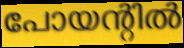
പോയന്റിൽ